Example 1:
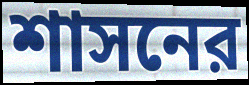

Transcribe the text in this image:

শাসনের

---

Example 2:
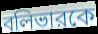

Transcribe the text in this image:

বলিভারকে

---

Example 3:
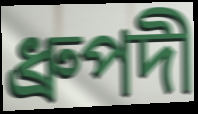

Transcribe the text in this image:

ধ্রুপদী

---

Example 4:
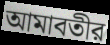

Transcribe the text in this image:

আমাবতীর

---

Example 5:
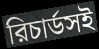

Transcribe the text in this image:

রিচার্ডসই